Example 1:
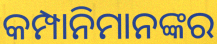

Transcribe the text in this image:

କମ୍ପାନିମାନଙ୍କର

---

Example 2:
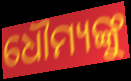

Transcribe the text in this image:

ଧୌମ୍ୟଙ୍କୁ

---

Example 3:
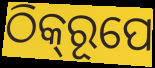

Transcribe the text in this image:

ଠିକ୍‌ରୂପେ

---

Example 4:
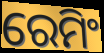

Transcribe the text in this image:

ରେମିଂ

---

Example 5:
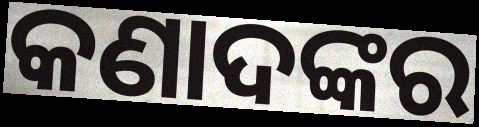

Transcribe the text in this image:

କଣାଦଙ୍କର